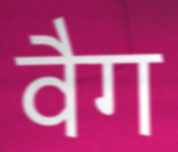
वैग